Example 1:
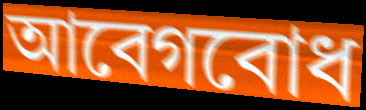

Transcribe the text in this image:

আবেগবোধ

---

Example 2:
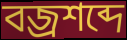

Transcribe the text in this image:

বজ্রশব্দে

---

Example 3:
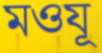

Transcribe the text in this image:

মওযূ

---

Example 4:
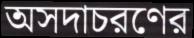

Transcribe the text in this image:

অসদাচরণের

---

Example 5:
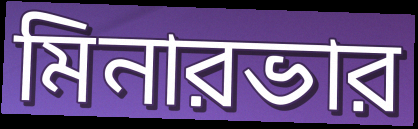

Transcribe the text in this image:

মিনারভার